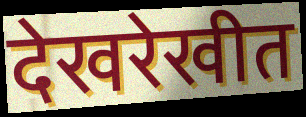
देखरेखीत